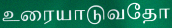
உரையாடுவதோ